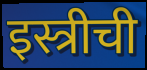
इस्त्रीची